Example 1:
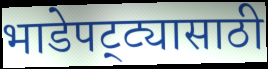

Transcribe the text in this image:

भाडेपट्ट्यासाठी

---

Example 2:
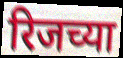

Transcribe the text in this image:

रिजच्या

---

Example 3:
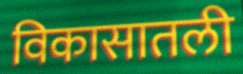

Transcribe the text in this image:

विकासातली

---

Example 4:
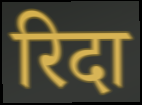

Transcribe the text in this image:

रिदा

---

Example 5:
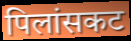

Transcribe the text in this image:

पिलांसकट